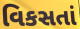
વિકસતાં